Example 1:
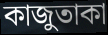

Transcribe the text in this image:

কাজুতাকা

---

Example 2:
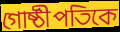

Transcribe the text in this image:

গোষ্ঠীপতিকে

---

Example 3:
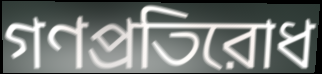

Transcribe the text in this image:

গণপ্রতিরোধ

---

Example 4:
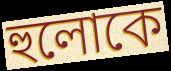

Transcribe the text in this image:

হুলোকে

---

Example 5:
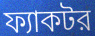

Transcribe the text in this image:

ফ্যাকটর